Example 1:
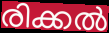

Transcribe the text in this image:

രിക്കൽ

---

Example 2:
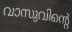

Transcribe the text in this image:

വാസുവിന്റെ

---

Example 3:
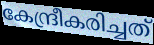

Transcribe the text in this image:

കേന്ദ്രീകരിച്ചത്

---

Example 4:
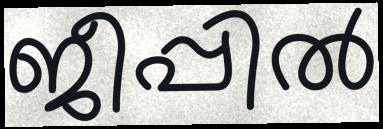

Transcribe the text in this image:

ജീപ്പിൽ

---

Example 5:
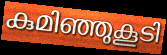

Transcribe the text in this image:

കുമിഞ്ഞുകൂടി